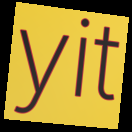
yit